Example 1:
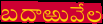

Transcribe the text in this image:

బదాఱువేల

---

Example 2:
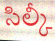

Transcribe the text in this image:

సిల్కీ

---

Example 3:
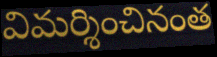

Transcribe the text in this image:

విమర్శించినంత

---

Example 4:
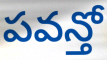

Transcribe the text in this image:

పవన్తో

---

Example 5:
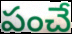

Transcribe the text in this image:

పంచే